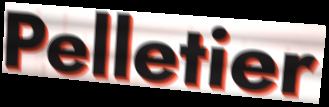
Pelletier